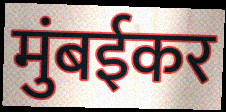
मुंबईकर